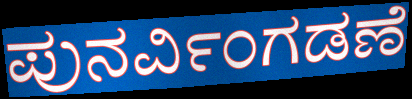
ಪುನರ್ವಿಂಗಡಣೆ